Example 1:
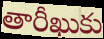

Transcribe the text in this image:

తారీఖుకు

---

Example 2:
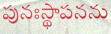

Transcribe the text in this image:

పునఃస్థాపనను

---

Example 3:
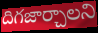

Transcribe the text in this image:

దిగజార్చాలని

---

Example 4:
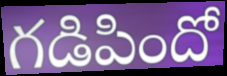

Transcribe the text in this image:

గడిపిందో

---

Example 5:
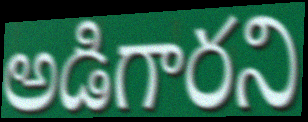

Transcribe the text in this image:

అడిగారని